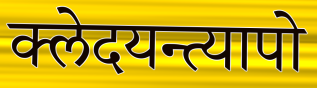
क्लेदयन्त्यापो